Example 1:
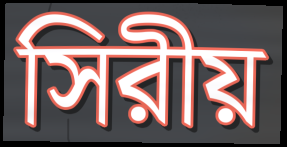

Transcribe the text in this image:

সিরীয়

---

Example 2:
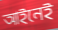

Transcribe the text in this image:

আইনেই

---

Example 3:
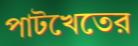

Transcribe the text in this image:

পাটখেতের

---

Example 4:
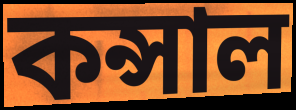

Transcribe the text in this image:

কন্সাল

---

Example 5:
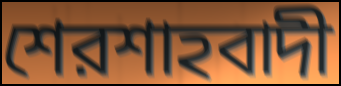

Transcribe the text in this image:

শেরশাহবাদী